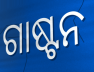
ଗାଷ୍ଟନ